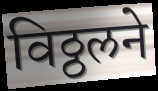
विठ्ठलने